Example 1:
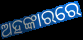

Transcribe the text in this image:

ଅହଙ୍କାରରେ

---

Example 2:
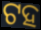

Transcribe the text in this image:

ଟହ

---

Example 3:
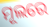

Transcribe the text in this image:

ମୂଲରେ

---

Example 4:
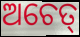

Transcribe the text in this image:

ଅଚେତ୍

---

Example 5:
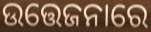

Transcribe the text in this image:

ଉତ୍ତେଜନାରେ